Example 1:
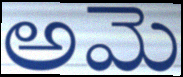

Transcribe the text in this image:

అమె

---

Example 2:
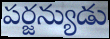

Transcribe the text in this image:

పర్జన్యుడు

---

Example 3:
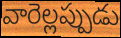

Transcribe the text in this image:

వారెల్లప్పుడు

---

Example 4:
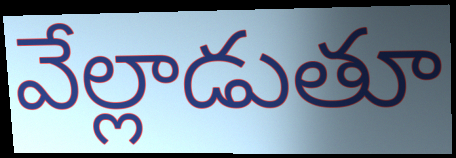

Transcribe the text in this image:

వేల్లాడుతూ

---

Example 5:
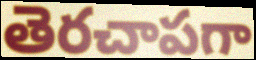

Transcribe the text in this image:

తెరచాపగా